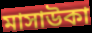
মাসাউকা